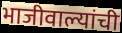
भाजीवाल्यांची